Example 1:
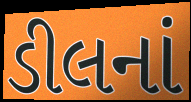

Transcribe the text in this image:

ડીલનાં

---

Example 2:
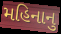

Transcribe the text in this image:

મહિનાનુ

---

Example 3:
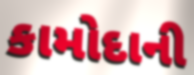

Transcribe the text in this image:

કામોદાની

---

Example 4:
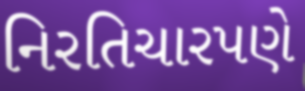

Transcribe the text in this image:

નિરતિચારપણે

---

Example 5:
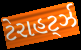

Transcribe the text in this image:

ટેરાહર્ટ્ઝ